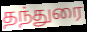
தந்துரை